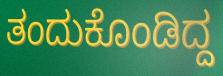
ತಂದುಕೊಂಡಿದ್ದ